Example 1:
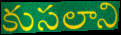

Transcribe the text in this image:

కుసలాని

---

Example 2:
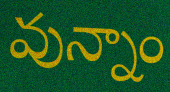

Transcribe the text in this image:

వున్నాం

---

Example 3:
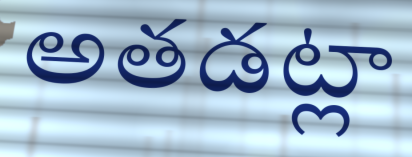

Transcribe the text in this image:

అతడట్లా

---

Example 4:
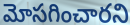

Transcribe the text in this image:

మోసగించారని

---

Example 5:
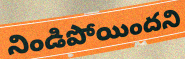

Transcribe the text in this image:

నిండిపోయిందని